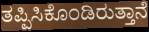
ತಪ್ಪಿಸಿಕೊಂಡಿರುತ್ತಾನೆ